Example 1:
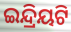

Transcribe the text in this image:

ଇନ୍ଦ୍ରିୟଟି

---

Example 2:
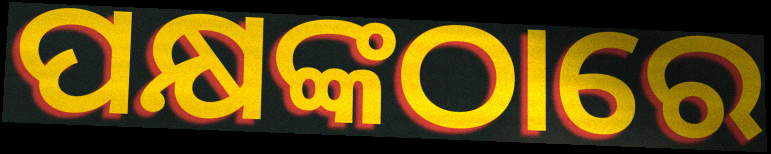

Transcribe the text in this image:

ପକ୍ଷଙ୍କଠାରେ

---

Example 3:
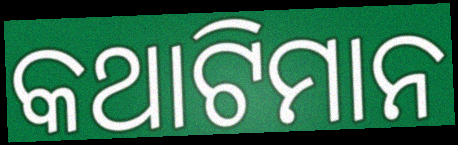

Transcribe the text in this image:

କଥାଟିମାନ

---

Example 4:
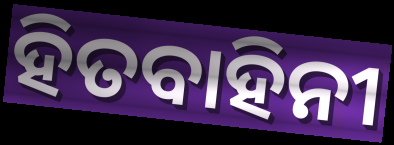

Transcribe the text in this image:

ହିତବାହିନୀ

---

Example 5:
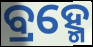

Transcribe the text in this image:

ବ୍ରହ୍ମେ